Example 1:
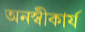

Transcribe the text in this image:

অনস্বীকাৰ্য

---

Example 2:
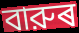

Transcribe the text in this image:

বাৰুৰ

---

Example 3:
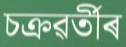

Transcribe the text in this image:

চক্ৰৱৰ্তীৰ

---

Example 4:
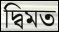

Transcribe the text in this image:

দ্বিমত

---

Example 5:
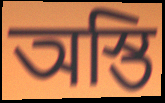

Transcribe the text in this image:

অস্তি